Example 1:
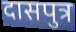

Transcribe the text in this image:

दासपुत्र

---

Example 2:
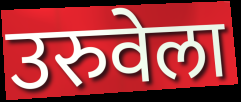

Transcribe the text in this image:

उरुवेला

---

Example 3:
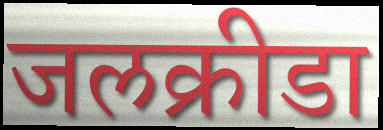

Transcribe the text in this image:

जलक्रीडा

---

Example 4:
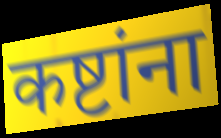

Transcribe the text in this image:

कष्टांना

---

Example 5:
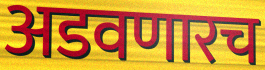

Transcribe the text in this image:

अडवणारच